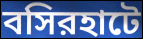
বসিরহাটে